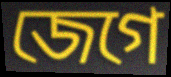
জেগে